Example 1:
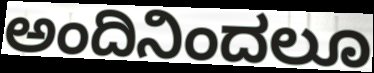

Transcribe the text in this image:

ಅಂದಿನಿಂದಲೂ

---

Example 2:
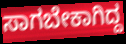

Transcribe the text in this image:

ಸಾಗಬೇಕಾಗಿದ್ದ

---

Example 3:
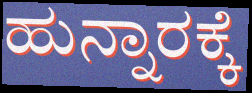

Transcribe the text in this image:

ಹುನ್ನಾರಕ್ಕೆ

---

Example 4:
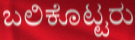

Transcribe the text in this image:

ಬಲಿಕೊಟ್ಟರು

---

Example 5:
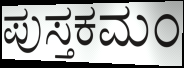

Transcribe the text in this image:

ಪುಸ್ತಕಮಂ